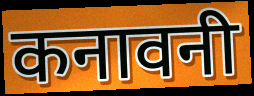
कनावनी